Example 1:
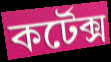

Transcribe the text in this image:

কর্টেক্স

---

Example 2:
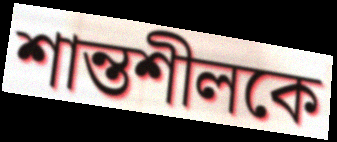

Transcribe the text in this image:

শান্তশীলকে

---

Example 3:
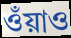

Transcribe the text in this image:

ওঁয়াও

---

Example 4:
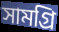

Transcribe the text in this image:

সামগ্রি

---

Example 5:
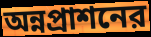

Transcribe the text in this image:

অন্নপ্রাশনের